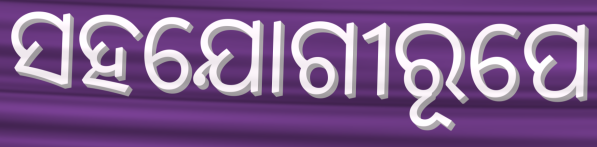
ସହଯୋଗୀରୂପେ